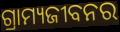
ଗ୍ରାମ୍ୟଜୀବନର